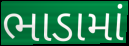
ભાડામાં